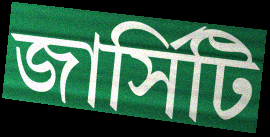
জার্সিটি